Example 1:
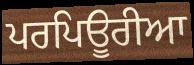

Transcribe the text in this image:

ਪਰਪਿਊਰੀਆ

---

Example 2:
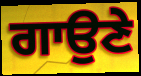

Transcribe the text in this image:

ਗਾਉਣੇ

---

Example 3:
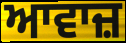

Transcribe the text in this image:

ਆਵਾਜ਼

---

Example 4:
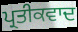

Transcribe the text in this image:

ਪ੍ਰਤੀਕਵਾਦ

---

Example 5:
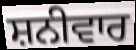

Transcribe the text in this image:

ਸ਼ਨੀਵਾਰ